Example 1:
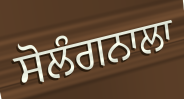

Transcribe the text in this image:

ਸੋਲੰਗਨਾਲਾ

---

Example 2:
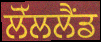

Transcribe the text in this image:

ਲੋੱਲਲੈਂਡ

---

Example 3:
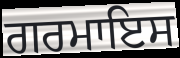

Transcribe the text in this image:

ਗਰਮਾਇਸ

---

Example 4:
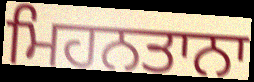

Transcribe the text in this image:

ਮਿਹਨਤਾਨਾ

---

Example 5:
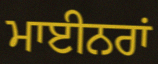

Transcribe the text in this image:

ਮਾਈਨਰਾਂ